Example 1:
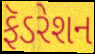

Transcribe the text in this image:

ફૅડરેશન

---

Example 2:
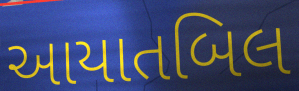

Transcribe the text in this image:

આયાતબિલ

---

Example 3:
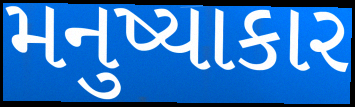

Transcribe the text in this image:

મનુષ્યાકાર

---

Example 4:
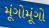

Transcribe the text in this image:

મૂંગોમૂંગો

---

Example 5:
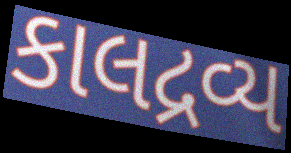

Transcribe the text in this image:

કાલદ્રવ્ય